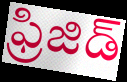
ఫ్రిజిడ్